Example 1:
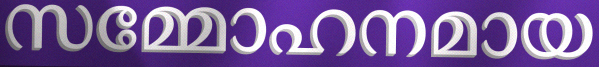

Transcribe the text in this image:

സമ്മോഹനമായ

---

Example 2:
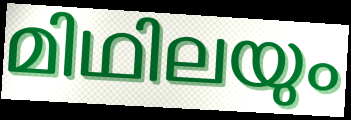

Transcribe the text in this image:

മിഥിലയും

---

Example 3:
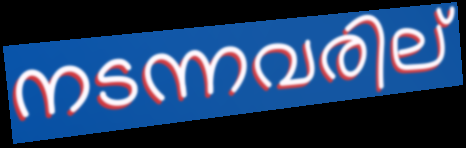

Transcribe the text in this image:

നടന്നവരില്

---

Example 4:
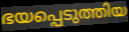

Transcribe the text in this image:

ഭയപ്പെടുത്തിയ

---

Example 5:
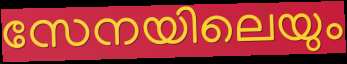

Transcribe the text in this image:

സേനയിലെയും